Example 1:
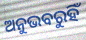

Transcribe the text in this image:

ଅନୁଭବରୁହିଁ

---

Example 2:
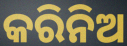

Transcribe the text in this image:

କରିନିଅ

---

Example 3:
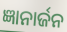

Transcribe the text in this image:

ଜ୍ଞାନାର୍ଜନ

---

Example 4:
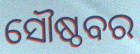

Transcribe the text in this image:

ସୌଷ୍ଠବର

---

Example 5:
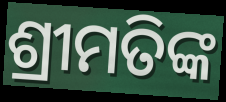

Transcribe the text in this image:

ଶ୍ରୀମତିଙ୍କ